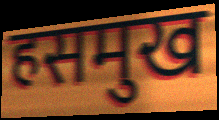
हसमुख